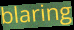
blaring